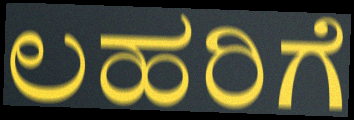
ಲಹರಿಗೆ